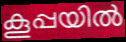
കൂപ്പയിൽ